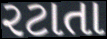
રટાતા